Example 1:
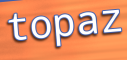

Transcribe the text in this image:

topaz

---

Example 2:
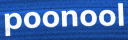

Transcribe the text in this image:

poonool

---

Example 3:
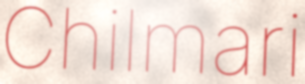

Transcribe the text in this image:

Chilmari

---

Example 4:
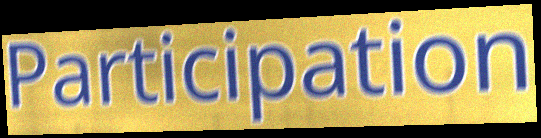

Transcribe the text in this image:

Participation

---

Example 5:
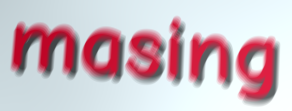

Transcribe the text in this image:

masing